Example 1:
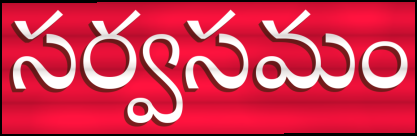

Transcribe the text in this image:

సర్వసమం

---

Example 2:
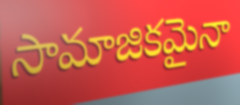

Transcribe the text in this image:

సామాజికమైనా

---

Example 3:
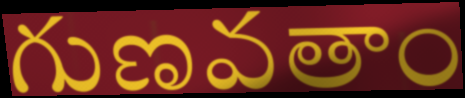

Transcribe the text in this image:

గుణవతాం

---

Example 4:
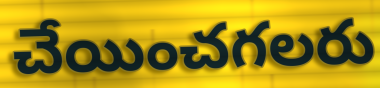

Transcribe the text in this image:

చేయించగలరు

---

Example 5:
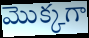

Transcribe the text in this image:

మొక్కగా